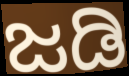
ಜಡಿ